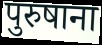
पुरुषाना